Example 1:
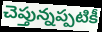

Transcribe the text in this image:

చెప్తున్నప్పటికీ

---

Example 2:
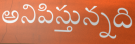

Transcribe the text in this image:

అనిపిస్తున్నది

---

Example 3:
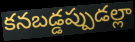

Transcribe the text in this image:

కనబడ్డప్పుడల్లా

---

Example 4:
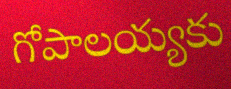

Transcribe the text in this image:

గోపాలయ్యకు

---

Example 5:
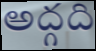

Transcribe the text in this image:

అద్గది